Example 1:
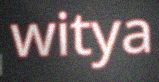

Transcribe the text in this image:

witya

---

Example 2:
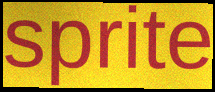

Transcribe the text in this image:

sprite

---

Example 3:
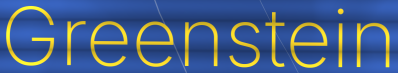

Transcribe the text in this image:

Greenstein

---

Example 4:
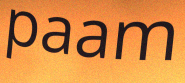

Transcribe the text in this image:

paam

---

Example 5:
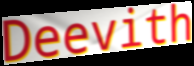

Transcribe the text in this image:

Deevith